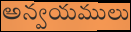
అన్వయములు